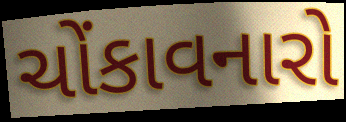
ચોંકાવનારો